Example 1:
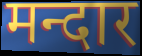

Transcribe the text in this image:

मन्दार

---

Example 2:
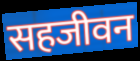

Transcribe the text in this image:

सहजीवन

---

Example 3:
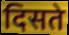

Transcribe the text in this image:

दिसते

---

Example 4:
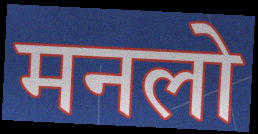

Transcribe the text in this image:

मनलो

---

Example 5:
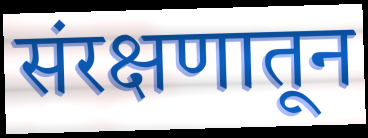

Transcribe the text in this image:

संरक्षणातून